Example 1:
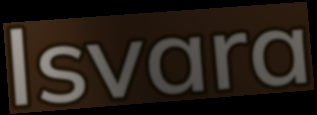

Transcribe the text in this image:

Isvara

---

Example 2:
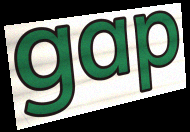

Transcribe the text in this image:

gap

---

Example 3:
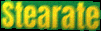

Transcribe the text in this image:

Stearate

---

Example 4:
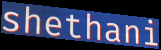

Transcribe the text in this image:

shethani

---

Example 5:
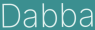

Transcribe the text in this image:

Dabba